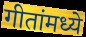
गीतांमध्ये